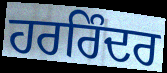
ਹਰਰਿੰਦਰ